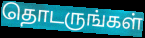
தொடருங்கள்